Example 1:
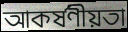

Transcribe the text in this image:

আকর্ষণীয়তা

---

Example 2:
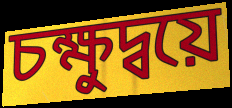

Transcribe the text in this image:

চক্ষুদ্বয়ে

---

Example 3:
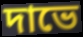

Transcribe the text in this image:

দাভে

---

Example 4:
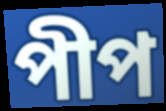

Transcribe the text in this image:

পীপ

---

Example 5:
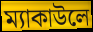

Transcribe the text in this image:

ম্যাকাউলে